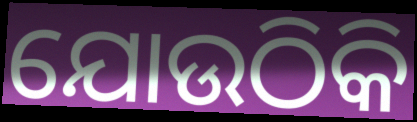
ଯୋଉଠିକି